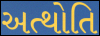
અત્થોતિ